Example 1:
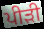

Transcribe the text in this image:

ਪੀੜੀ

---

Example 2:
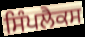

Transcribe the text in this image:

ਸਿੰਪਲੈਕਸ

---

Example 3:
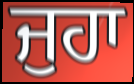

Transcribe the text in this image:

ਜੁਹਾ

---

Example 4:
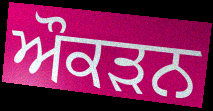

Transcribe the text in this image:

ਔਕੜਨ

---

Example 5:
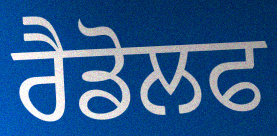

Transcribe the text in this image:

ਰੈਡੋਲਫ